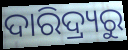
ଦାରିଦ୍ର୍ୟରୁ